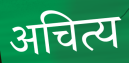
अचित्य